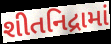
શીતનિદ્રામાં